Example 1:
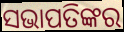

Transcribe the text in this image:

ସଭାପତିଙ୍କର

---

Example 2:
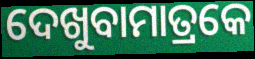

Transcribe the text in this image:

ଦେଖୁବାମାତ୍ରକେ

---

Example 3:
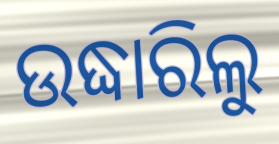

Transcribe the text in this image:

ଉଦ୍ଧାରିଲୁ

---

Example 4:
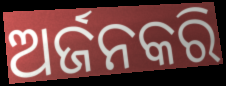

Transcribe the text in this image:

ଅର୍ଜନକରି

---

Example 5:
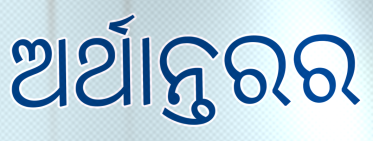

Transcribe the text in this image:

ଅର୍ଥାନ୍ତରର